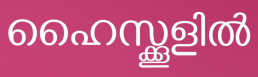
ഹൈസ്ക്കൂളിൽ